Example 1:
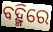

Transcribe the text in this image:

ବହ୍ମିରେ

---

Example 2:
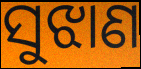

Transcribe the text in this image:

ସୁଝାଣ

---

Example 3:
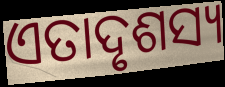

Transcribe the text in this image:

ଏତାଦୃଶସ୍ୟ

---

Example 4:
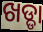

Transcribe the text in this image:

ଖଡ୍ଡା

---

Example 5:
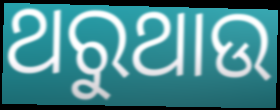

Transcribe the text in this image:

ଥରୁଥାଉ